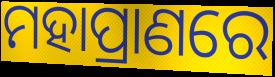
ମହାପ୍ରାଣରେ